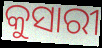
କୁସାରୀ